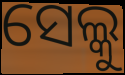
ସେଲ୍କୁ